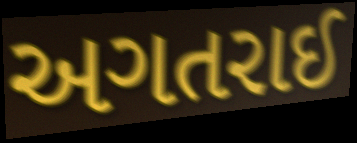
અગતરાઈ